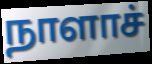
நாளாச்